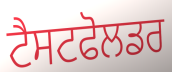
ਟੈਸਟਫੋਲਡਰ